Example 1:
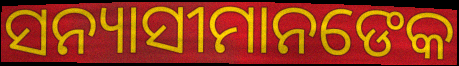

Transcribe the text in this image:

ସନ୍ୟାସୀମାନଙେକ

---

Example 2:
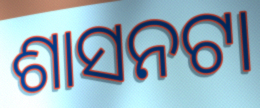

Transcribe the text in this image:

ଶାସନଟା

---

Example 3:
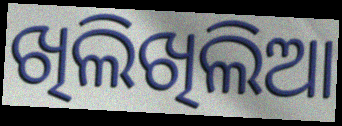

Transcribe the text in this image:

ଖିଲିଖିଲିଆ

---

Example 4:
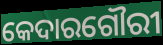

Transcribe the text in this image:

କେଦାରଗୌରୀ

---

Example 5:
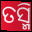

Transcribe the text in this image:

ତସ୍ମି